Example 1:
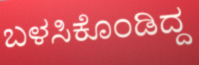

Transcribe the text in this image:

ಬಳಸಿಕೊಂಡಿದ್ದ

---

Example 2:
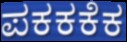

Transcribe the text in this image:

ಪಕಕಕೆಕ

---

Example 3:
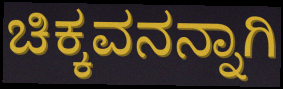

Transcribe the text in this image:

ಚಿಕ್ಕವನನ್ನಾಗಿ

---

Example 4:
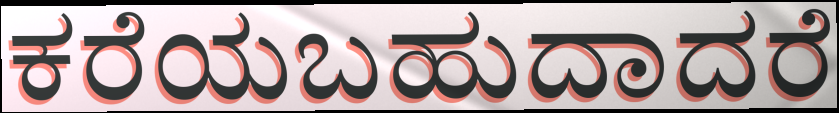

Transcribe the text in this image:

ಕರೆಯಬಹುದಾದರೆ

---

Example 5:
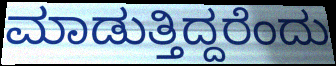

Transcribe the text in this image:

ಮಾಡುತ್ತಿದ್ದರೆಂದು